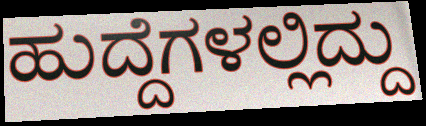
ಹುದ್ದೆಗಳಲ್ಲಿದ್ದು